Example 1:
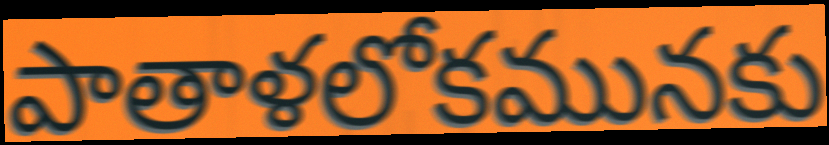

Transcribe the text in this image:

పాతాళలోకమునకు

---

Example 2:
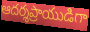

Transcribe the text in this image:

ఆదర్శప్రాయుడిగా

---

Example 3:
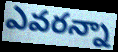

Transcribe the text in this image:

ఎవరన్నా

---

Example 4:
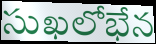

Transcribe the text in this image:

సుఖలోభేన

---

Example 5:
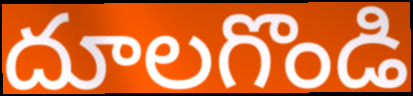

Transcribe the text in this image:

దూలగొండి